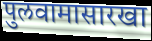
पुलवामासारखा